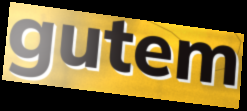
gutem